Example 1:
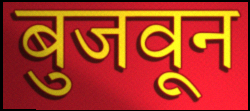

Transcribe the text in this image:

बुजवून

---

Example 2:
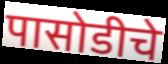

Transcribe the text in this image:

पासोडीचे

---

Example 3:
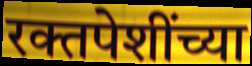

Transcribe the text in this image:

रक्तपेशींच्या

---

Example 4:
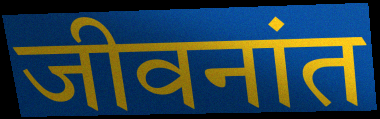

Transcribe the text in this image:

जीवनांत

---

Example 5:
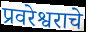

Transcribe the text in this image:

प्रवरेश्वराचे